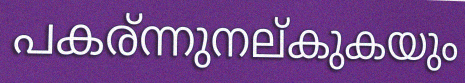
പകര്ന്നുനല്കുകയും